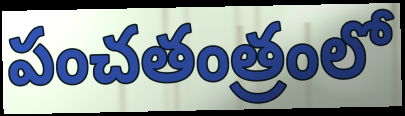
పంచతంత్రంలో